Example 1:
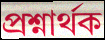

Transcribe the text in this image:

প্ৰশ্নাৰ্থক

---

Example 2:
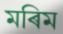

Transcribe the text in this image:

মৰিম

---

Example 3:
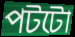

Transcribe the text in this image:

পটটো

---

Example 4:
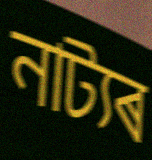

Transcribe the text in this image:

নাট্যৰ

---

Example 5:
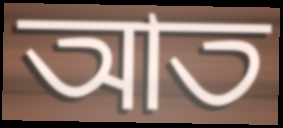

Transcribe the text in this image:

আত